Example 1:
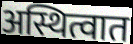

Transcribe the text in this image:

अस्थित्वात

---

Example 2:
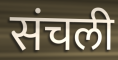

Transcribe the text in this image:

संचली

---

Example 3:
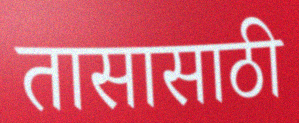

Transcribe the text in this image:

तासासाठी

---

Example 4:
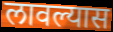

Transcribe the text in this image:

लावल्यास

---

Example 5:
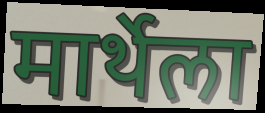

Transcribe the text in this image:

मार्थेला